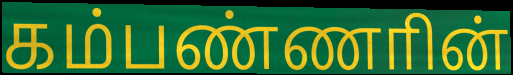
கம்பண்ணரின்